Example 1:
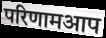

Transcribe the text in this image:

परिणामआप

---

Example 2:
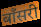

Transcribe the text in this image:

बाँसरी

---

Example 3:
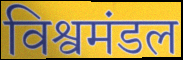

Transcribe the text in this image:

विश्वमंडल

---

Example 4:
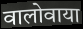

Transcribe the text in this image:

वालोवाया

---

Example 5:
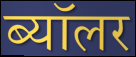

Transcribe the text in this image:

ब्यॉलर